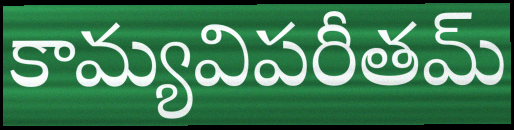
కామ్యవిపరీతమ్